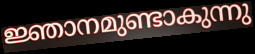
ജ്ഞാനമുണ്ടാകുന്നു